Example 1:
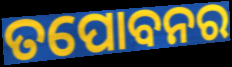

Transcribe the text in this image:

ତପୋବନର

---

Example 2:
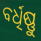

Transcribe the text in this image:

ବର୍ଧିଷ୍ଣୁ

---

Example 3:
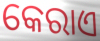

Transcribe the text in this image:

କେରାଏ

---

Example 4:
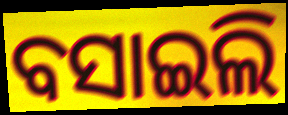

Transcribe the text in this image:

ବସାଇଲି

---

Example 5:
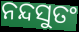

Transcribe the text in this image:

ନନ୍ଦସୁତଂ